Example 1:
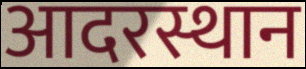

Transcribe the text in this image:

आदरस्थान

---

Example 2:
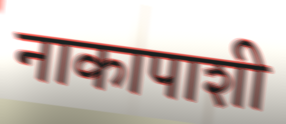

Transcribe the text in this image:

नाकापाशी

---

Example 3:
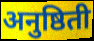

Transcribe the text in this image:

अनुष्ठिती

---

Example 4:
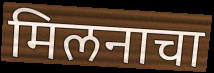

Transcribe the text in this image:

मिलनाचा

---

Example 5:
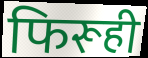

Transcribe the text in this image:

फिरूही